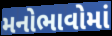
મનોભાવોમાં